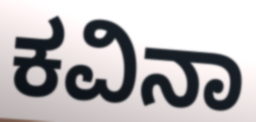
ಕವಿನಾ